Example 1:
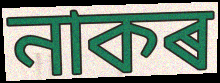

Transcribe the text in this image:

নাকৰ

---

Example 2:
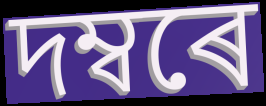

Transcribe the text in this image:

দম্বৰে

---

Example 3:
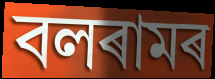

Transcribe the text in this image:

বলৰামৰ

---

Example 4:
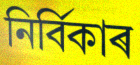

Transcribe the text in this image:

নিৰ্বিকাৰ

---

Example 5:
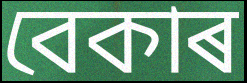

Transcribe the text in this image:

বেকাৰ